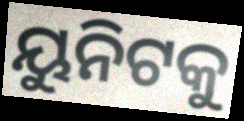
ୟୁନିଟକୁ